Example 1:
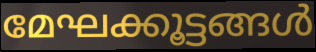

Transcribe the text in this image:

മേഘക്കൂട്ടങ്ങൾ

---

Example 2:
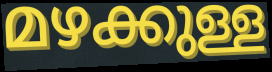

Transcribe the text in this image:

മഴക്കുള്ള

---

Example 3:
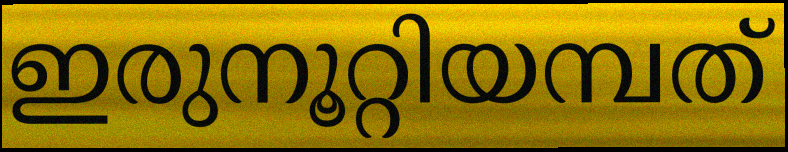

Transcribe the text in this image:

ഇരുനൂറ്റിയമ്പത്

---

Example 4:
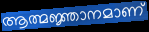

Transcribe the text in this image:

ആത്മജ്ഞാനമാണ്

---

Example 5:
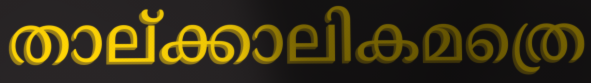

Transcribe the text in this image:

താല്ക്കാലികമത്രെ